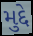
મુદ્દે